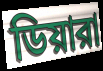
ডিয়ারা